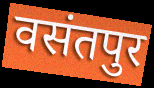
वसंतपुर